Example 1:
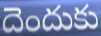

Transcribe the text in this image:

దెందుకు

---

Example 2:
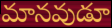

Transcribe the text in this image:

మానవుడూ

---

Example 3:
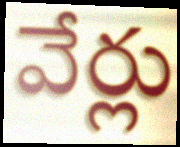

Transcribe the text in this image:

వేర్లు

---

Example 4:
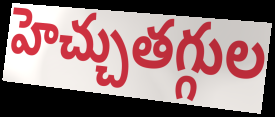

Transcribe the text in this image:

హెచ్చుతగ్గుల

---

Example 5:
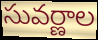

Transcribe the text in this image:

సువర్ణాల